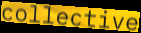
collective